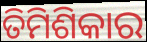
ତିମିଶିକାର